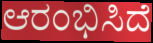
ಆರಂಭಿಸಿದೆ